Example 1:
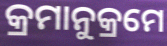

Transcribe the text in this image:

କ୍ରମାନୁକ୍ରମେ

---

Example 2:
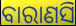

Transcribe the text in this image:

ବାରାଣସି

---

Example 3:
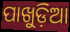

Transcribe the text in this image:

ପାଖୁଡ଼ିଆ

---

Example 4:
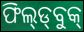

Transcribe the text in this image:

ଫିଲ୍‍ଡ୍‍ବୁକ୍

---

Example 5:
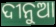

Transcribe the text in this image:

ଦୀନୁଆ